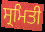
ਸ੍ਰਮਿਤੀ